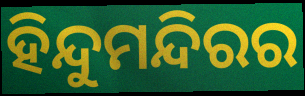
ହିନ୍ଦୁମନ୍ଦିରର